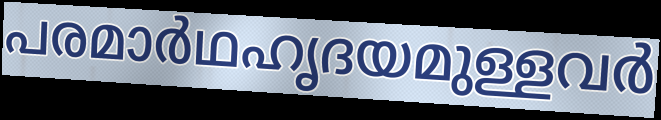
പരമാർഥഹൃദയമുള്ളവർ